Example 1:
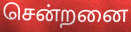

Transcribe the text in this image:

சென்றனை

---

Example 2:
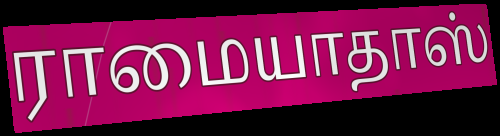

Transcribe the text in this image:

ராமையாதாஸ்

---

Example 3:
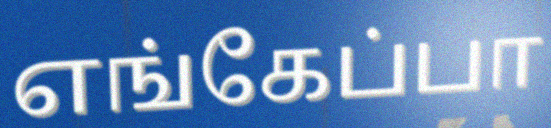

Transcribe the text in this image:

எங்கேப்பா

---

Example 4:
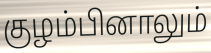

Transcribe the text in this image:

குழம்பினாலும்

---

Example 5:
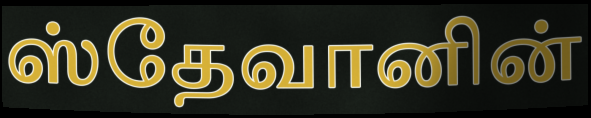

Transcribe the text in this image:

ஸ்தேவானின்